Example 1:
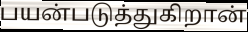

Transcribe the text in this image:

பயன்படுத்துகிறான்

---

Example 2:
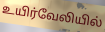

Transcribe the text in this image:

உயிர்வேலியில்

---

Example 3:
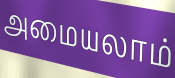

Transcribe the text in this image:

அமையலாம்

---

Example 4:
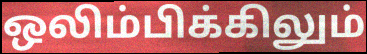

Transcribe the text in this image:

ஒலிம்பிக்கிலும்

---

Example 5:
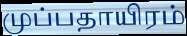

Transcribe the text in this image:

முப்பதாயிரம்